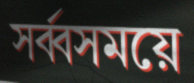
সর্ব্বসময়ে